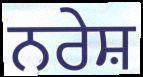
ਨਰੇਸ਼